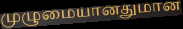
முழுமையானதுமான